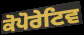
ਕੋਪੋਰੇਟਿਵ